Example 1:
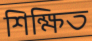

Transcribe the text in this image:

শিক্ষিত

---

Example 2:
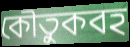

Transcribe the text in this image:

কৌতুকবহ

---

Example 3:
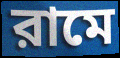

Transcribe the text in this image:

রামে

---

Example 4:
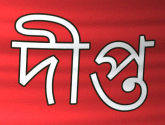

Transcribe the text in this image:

দীপ্ত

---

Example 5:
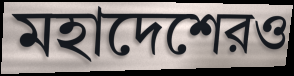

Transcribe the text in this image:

মহাদেশেরও